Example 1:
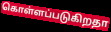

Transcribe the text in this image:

கொள்ளப்படுகிறதா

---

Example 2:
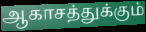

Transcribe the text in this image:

ஆகாசத்துக்கும்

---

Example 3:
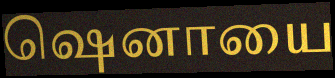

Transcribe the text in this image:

ஷெனாயை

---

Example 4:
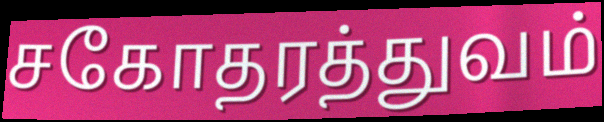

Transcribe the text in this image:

சகோதரத்துவம்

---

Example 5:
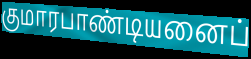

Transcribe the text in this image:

குமாரபாண்டியனைப்